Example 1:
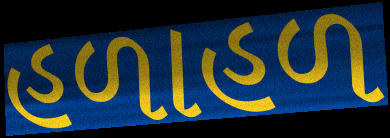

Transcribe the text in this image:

હળાહળ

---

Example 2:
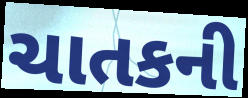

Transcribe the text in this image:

ચાતકની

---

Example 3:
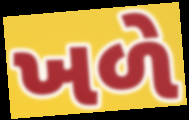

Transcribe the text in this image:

ખળે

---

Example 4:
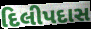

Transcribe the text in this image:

દિલીપદાસ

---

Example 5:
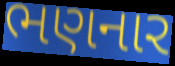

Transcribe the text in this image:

ભણનાર